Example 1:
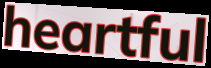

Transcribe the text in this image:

heartful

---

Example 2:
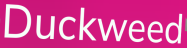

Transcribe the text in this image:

Duckweed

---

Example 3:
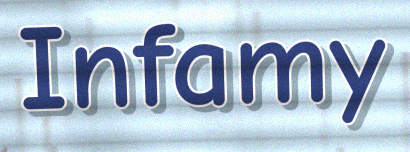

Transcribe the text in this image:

Infamy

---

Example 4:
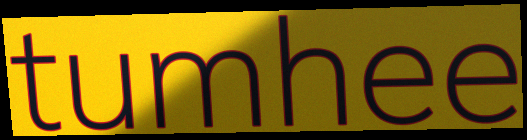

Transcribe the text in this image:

tumhee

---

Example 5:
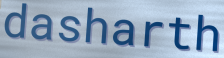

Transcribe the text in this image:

dasharth